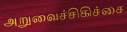
அறுவைச்சிகிச்சை